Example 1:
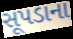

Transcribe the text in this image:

સૂપડાના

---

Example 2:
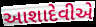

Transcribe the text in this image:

આશાદેવીએ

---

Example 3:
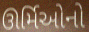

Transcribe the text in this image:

ઊર્મિઓનો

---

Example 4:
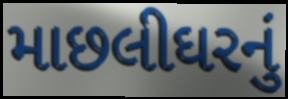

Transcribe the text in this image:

માછલીઘરનું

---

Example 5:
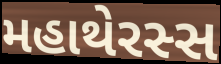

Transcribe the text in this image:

મહાથેરસ્સ